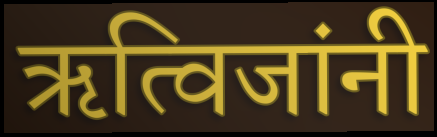
ऋत्विजांनी